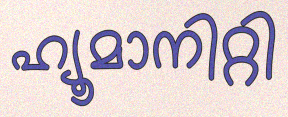
ഹ്യൂമാനിറ്റി